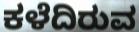
ಕಳೆದಿರುವ